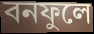
বনফুলে